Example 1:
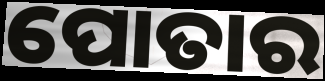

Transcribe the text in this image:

ପୋତାର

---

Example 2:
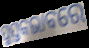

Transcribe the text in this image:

ପୁସ୍ତକଭାବରେ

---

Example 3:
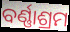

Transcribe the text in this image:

ବର୍ଣ୍ଣାଶ୍ରମ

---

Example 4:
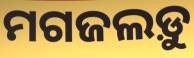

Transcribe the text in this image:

ମଗଜଲଡ଼ୁ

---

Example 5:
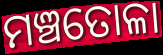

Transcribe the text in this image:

ମଞ୍ଚତୋଳା